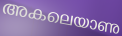
അകലെയാണു